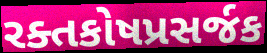
રક્તકોષપ્રસર્જક